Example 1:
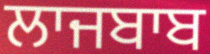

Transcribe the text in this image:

ਲਾਜਬਾਬ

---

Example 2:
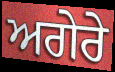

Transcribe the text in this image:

ਅਗੇਰੇ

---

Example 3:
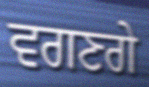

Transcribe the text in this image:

ਵਗਣਗੇ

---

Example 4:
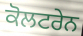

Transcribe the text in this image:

ਕੋਲਟਰੇਨ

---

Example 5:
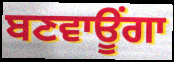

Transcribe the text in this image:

ਬਣਵਾਊਂਗਾ